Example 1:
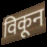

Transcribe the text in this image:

विकून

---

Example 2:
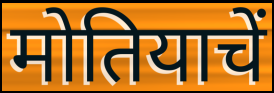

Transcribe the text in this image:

मोतियाचें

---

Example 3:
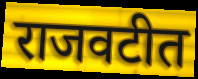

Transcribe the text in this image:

राजवटीत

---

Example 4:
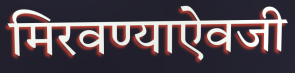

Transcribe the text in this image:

मिरवण्याऐवजी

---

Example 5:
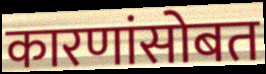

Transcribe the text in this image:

कारणांसोबत